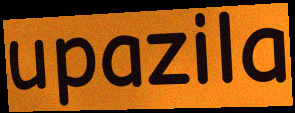
upazila